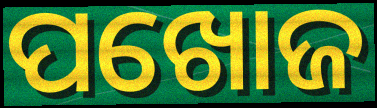
ପଖୋଜ